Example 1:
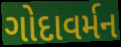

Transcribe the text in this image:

ગોદાવર્મન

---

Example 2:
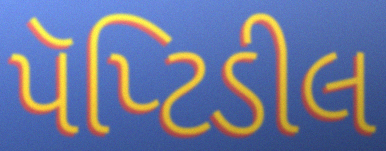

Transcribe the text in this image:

પૅપ્ટિડીલ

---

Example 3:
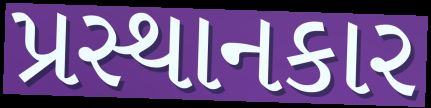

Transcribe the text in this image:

પ્રસ્થાનકાર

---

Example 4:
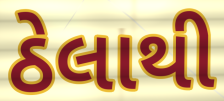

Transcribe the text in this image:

ઠેલાથી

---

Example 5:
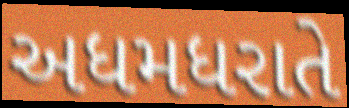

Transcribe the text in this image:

અધમધરાતે